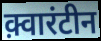
क़्वारंटीन